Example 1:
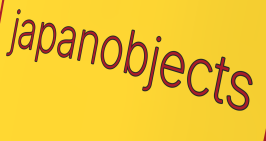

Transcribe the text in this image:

japanobjects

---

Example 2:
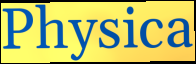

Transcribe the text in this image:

Physica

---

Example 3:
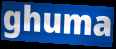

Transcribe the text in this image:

ghuma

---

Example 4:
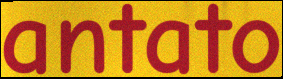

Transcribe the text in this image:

antato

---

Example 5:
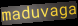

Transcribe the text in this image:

maduvaga